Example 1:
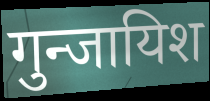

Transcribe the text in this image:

गुन्जायिश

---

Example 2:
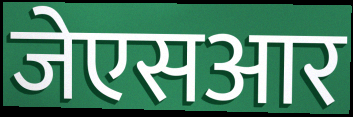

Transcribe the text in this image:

जेएसआर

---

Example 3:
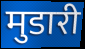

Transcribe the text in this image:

मुडारी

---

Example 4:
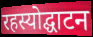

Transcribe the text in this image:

रहस्योद्घाटन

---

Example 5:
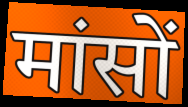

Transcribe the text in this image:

मांसों